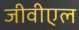
जीवीएल